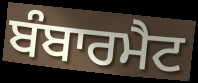
ਬੰਬਾਰਮੈਟ